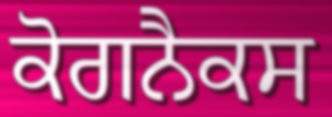
ਕੋਗਨੈਕਸ